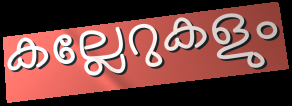
കല്ലേറുകളും